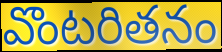
వొంటరితనం